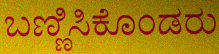
ಬಣ್ಣಿಸಿಕೊಂಡರು